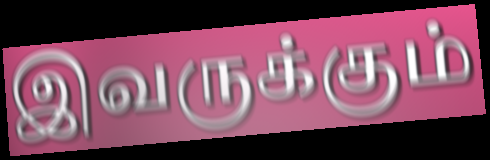
இவருக்கும்